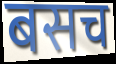
बसच